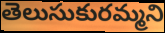
తెలుసుకురమ్మని